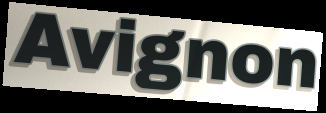
Avignon